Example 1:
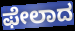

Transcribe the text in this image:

ಫೇಲಾದ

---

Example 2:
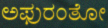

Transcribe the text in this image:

ಅಫುರಂತೋ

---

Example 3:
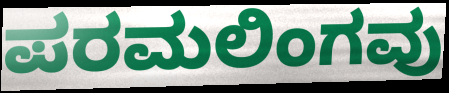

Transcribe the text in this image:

ಪರಮಲಿಂಗವು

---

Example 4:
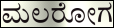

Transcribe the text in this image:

ಮಲರೋಗ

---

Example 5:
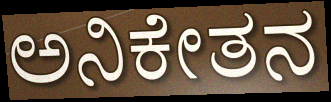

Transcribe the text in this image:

ಅನಿಕೇತನ